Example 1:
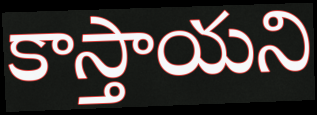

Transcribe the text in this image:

కాస్తాయని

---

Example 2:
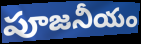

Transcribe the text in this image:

పూజనీయం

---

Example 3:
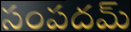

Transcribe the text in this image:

సంపదమ్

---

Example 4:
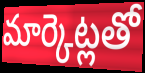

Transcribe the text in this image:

మార్కెట్లతో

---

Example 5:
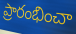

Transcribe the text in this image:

ప్రారంభించా